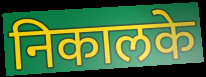
निकालके